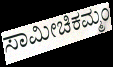
ಸಾಮೀಚಿಕಮ್ಮಂ